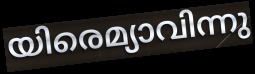
യിരെമ്യാവിന്നു